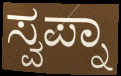
ಸ್ವಪ್ನಾ